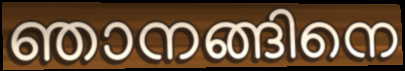
ഞാനങ്ങിനെ